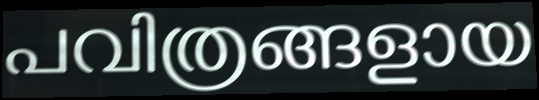
പവിത്രങ്ങളായ